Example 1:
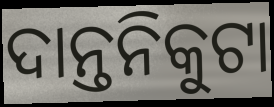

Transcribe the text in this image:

ଦାନ୍ତନିକୁଟା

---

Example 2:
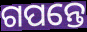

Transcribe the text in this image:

ଗପନ୍ତେ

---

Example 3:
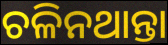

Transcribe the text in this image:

ଚଳିନଥାନ୍ତା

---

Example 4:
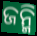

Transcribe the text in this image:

ଜନ୍ମି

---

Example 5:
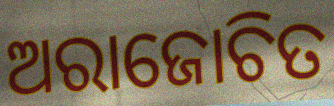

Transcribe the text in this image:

ଅରାଜୋଚିତ